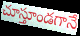
చూస్తూండగానే